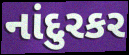
નાંદુરકર